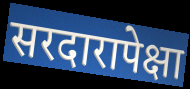
सरदारापेक्षा